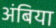
अंबिया